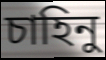
চাহিনু